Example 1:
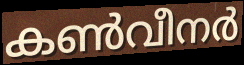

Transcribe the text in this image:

കൺവീനർ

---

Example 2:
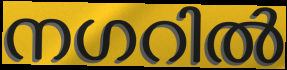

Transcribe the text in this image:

നഗറിൽ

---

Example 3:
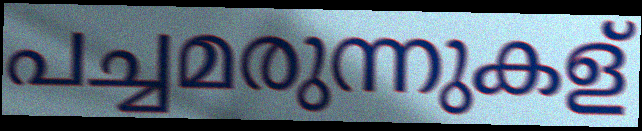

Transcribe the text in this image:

പച്ചമരുന്നുകള്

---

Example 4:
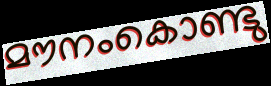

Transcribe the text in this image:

മൗനംകൊണ്ടു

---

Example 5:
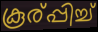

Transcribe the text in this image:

കൂര്പ്പിച്ച്